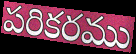
పరికరము